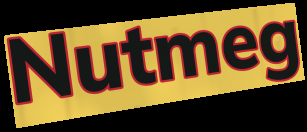
Nutmeg